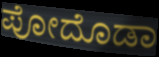
ಪೋದೊಡಾ